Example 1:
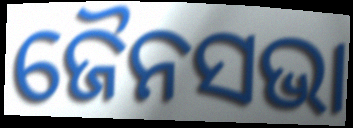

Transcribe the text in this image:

ଜୈନସଭା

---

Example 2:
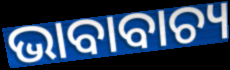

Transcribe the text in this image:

ଭାବାବାଚ୍ୟ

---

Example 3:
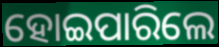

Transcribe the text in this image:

ହୋଇପାରିଲେ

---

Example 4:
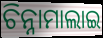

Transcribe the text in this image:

ଚିନ୍ନାମାଲାଇ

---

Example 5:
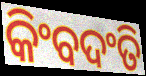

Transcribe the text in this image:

କିଂବଦଂତି